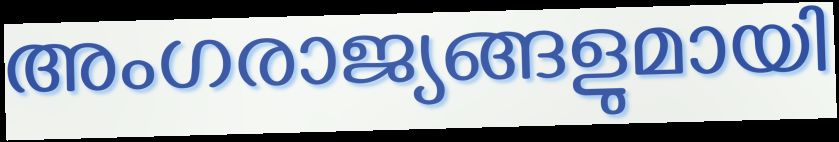
അംഗരാജ്യങ്ങളുമായി